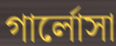
গার্লোসা